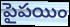
పైపయిం